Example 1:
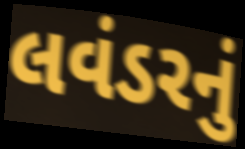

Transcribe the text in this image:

લવંડરનું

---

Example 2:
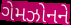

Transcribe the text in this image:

ગેમઝોનને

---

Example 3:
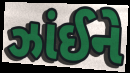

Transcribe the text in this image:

ઝાંઈને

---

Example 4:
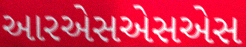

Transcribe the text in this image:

આરએસએસએસ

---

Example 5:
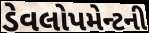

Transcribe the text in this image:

ડેવલોપમેન્ટની